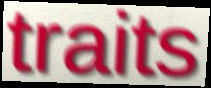
traits